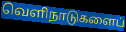
வெளிநாடுகளைப்